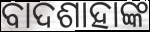
ବାଦଶାହାଙ୍କ